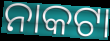
ନାକଟା